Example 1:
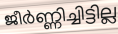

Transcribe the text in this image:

ജീർണ്ണിച്ചിട്ടില്ല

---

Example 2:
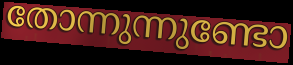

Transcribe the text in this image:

തോന്നുന്നുണ്ടോ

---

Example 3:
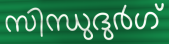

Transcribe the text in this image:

സിന്ധുദുർഗ്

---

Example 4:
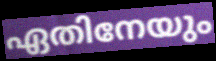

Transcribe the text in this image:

ഏതിനേയും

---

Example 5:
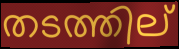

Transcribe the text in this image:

തടത്തില്